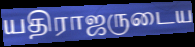
யதிராஜருடைய